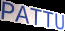
PATTU